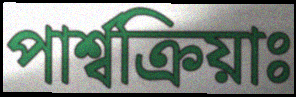
পাৰ্শ্বক্ৰিয়াঃ